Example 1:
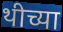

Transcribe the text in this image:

थीच्या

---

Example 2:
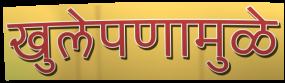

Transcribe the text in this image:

खुलेपणामुळे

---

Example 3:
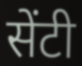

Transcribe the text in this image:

सेंटी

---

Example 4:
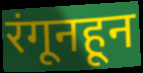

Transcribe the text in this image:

रंगूनहून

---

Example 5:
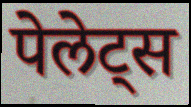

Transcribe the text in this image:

पेलेट्स